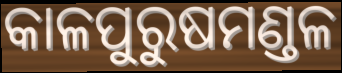
କାଳପୁରୁଷମଣ୍ଡଳ